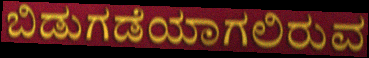
ಬಿಡುಗಡೆಯಾಗಲಿರುವ